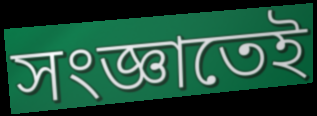
সংজ্ঞাতেই